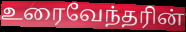
உரைவேந்தரின்